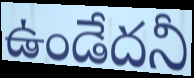
ఉండేదనీ